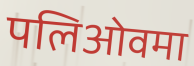
पलिओवमा